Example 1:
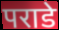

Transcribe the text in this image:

पराडे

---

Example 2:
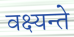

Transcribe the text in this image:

वक्ष्यन्ते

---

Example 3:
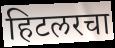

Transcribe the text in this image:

हिटलरचा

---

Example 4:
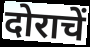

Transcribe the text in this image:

दोराचें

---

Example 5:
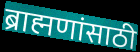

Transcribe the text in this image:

ब्राह्मणांसाठी